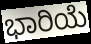
ಭಾರಿಯೆ